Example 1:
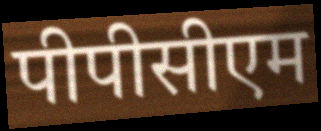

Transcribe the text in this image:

पीपीसीएम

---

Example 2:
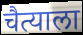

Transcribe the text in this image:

चैत्याला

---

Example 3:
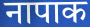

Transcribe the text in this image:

नापाक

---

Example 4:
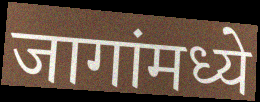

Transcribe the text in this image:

जागांमध्ये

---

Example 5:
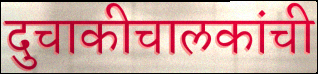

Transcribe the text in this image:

दुचाकीचालकांची